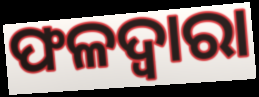
ଫଳଦ୍ୱାରା